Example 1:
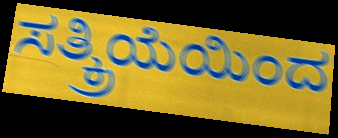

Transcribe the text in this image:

ಸತ್ಕ್ರಿಯೆಯಿಂದ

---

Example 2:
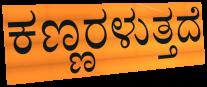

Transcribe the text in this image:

ಕಣ್ಣರಳುತ್ತದೆ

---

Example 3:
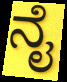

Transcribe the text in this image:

ನೈ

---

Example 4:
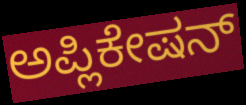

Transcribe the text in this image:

ಅಪ್ಲಿಕೇಷನ್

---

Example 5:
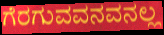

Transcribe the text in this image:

ಗೆರಗುವವನವನಲ್ಲ